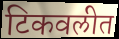
टिकवलीत